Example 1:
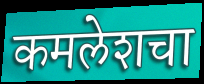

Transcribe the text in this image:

कमलेशचा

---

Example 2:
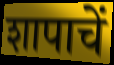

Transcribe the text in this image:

शापाचें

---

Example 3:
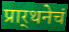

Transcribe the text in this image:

प्रार्थनेचं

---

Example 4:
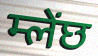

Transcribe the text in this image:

म्लेंछ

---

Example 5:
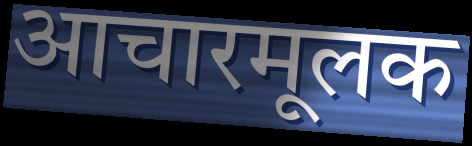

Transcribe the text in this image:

आचारमूलक